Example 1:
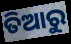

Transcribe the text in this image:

ତିଆରୁ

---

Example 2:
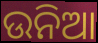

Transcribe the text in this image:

ଉନିଆ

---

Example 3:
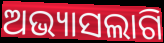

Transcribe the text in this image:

ଅଭ୍ୟାସଲାଗି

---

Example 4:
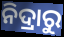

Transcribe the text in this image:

ନିଦ୍ରାରୁ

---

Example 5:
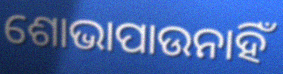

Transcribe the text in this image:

ଶୋଭାପାଉନାହିଁ